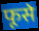
फूसे